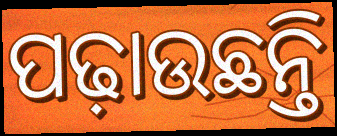
ପଢ଼ାଉଛନ୍ତି